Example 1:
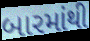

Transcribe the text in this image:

બારમાંથી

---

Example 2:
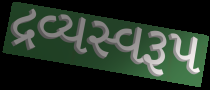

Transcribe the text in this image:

દ્રવ્યસ્વરૂપ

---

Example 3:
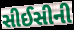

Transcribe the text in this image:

સીઈસીની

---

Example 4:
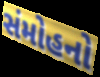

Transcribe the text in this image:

સંમોહનો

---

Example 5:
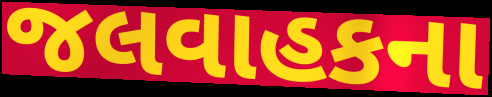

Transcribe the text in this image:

જલવાહકના